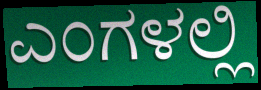
ಎಂಗಳಲ್ಲಿ